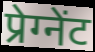
प्रेग्नेंट